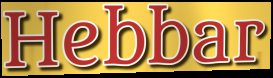
Hebbar